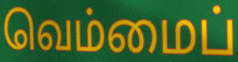
வெம்மைப்